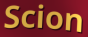
Scion